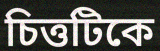
চিত্তটিকে